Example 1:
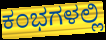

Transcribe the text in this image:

ಕಂಭಗಳಲ್ಲಿ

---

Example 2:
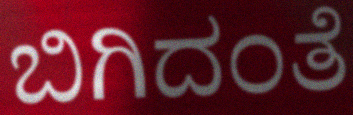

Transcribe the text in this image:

ಬಿಗಿದಂತೆ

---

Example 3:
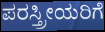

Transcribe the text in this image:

ಪರಸ್ತ್ರೀಯರಿಗೆ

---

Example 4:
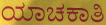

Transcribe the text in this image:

ಯಾಚಕಾತಿ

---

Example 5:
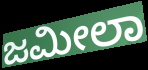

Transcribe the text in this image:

ಜಮೀಲಾ